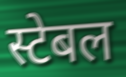
स्टेबल